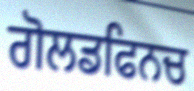
ਗੋਲਡਫਿਨਚ